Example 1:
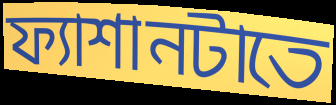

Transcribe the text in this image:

ফ্যাশানটাতে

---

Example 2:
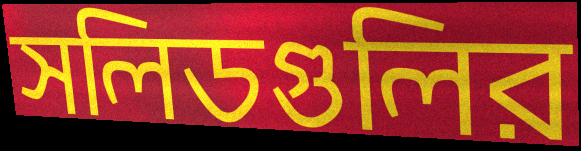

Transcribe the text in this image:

সলিডগুলির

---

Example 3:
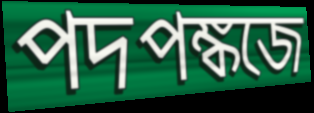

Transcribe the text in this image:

পদপঙ্কজে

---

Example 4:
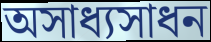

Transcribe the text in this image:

অসাধ্যসাধন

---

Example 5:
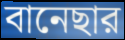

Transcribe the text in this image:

বানেছার